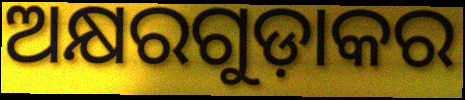
ଅକ୍ଷରଗୁଡ଼ାକର